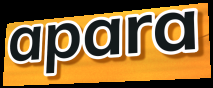
apara